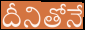
దీనితోనే